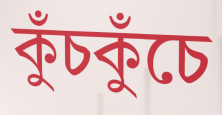
কুঁচকুঁচে